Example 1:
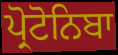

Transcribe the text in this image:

ਪ੍ਰੋਟੋਨਿਬਾ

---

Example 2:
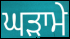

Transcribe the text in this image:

ਘੜਾਮੇ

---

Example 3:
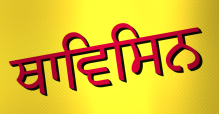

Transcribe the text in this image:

ਥਾਵਿਸਿਨ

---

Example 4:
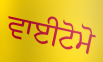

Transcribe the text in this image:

ਵਾਈਟੋਮੋ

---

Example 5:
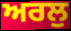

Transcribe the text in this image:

ਅਰਲੁ